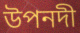
উপনদী